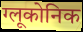
ग्लूकोनिक